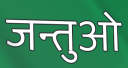
जन्तुओ